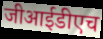
जीआईडीएच